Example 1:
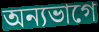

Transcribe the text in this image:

অন্যভাগে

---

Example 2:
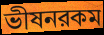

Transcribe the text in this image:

ভীষনরকম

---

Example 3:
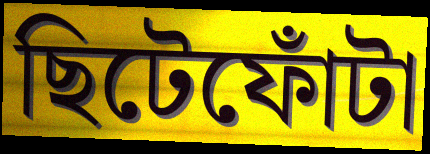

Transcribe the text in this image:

ছিটেফোঁটা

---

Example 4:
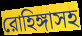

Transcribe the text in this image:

রোহিঙ্গাসহ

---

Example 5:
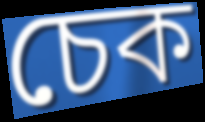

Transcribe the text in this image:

চেক